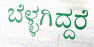
ಬೆಳ್ಳಗಿದ್ದರೆ